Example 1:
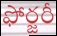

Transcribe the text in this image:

ఫోర్జరీ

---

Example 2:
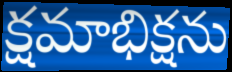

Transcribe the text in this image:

క్షమాభిక్షను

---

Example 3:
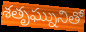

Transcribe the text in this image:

శతృఘ్నునితో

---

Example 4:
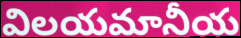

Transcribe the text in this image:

విలయమానీయ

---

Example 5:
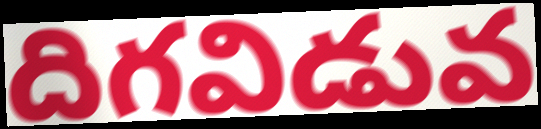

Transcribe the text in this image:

దిగవిడువ